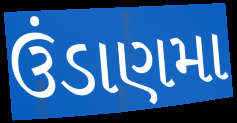
ઉંડાણમા